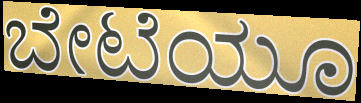
ಬೇಟೆಯೂ